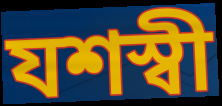
যশস্বী